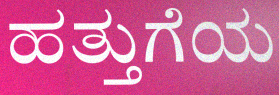
ಹತ್ತುಗೆಯ